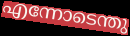
എന്നോടെന്തു